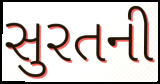
સુરતની